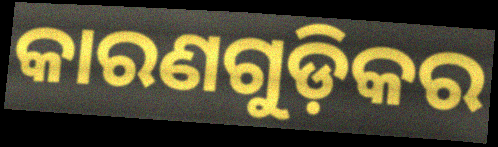
କାରଣଗୁଡ଼ିକର